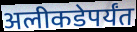
अलीकडेपर्यंत